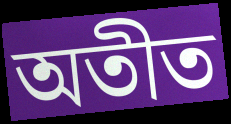
অতীত